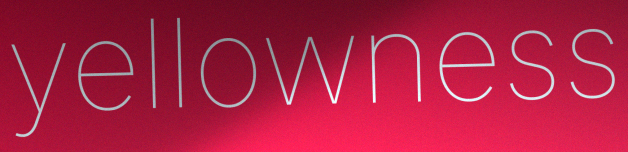
yellowness